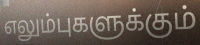
எலும்புகளுக்கும்